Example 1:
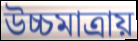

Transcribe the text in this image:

উচ্চমাত্রায়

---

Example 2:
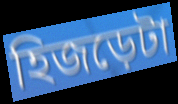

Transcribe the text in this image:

হিজড়েটা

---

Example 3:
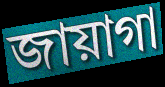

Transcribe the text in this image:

জায়াগা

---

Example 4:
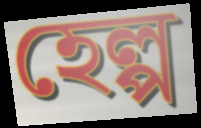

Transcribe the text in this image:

হেল্প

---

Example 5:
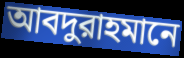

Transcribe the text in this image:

আবদুরাহমানে